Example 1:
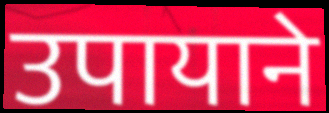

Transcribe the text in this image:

उपायाने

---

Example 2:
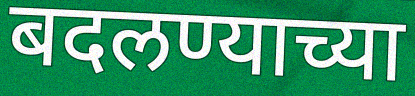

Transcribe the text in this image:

बदलण्याच्या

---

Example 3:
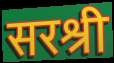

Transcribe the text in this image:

सरश्री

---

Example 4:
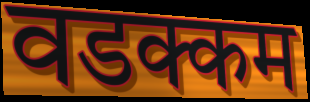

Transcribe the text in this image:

वडक्कम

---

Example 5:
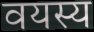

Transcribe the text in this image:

वयस्य